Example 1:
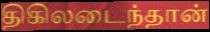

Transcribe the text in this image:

திகிலடைந்தான்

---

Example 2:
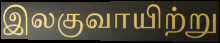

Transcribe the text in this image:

இலகுவாயிற்று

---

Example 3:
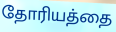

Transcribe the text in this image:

தோரியத்தை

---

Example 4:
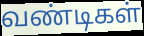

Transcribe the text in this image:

வண்டிகள்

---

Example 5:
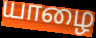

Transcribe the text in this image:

யாழை